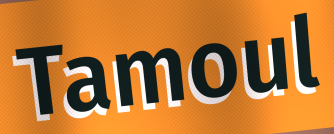
Tamoul